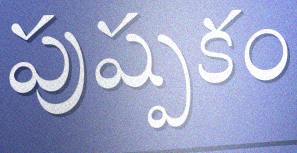
పుష్పకం